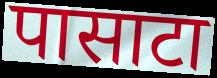
पासाटा